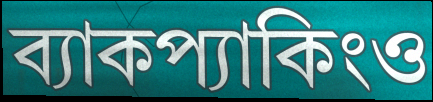
ব্যাকপ্যাকিংও